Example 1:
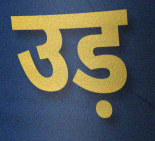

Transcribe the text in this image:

उड़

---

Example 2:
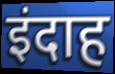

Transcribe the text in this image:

इंदाह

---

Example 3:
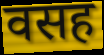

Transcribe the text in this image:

वसह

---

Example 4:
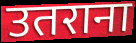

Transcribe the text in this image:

उतराना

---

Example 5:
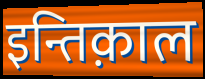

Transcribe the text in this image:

इन्तिक़ाल